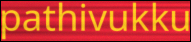
pathivukku